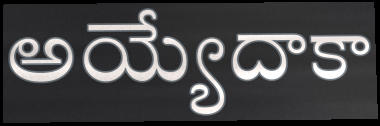
అయ్యేదాకా